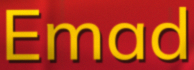
Emad